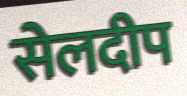
सेलदीप